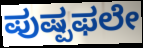
ಪುಷ್ಪಫಲೇ